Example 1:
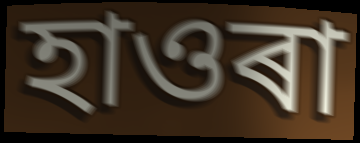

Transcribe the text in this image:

হাওৰা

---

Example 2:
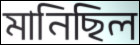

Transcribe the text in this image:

মানিছিল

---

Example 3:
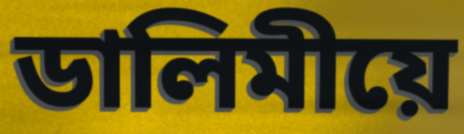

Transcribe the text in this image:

ডালিমীয়ে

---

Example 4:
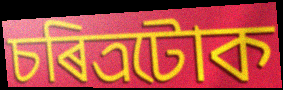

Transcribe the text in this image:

চৰিত্ৰটোক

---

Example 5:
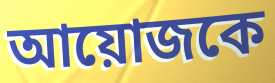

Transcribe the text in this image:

আয়োজকে